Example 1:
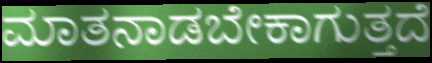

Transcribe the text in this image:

ಮಾತನಾಡಬೇಕಾಗುತ್ತದೆ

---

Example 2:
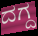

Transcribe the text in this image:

ದಗ್ದ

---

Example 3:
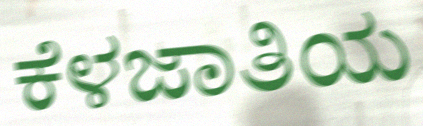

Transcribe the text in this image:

ಕೆಳಜಾತಿಯ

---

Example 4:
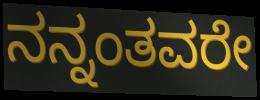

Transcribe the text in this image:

ನನ್ನಂತವರೇ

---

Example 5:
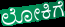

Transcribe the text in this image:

ಲೋಕಿಗೆ